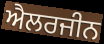
ਐਲਰਜੀਨ